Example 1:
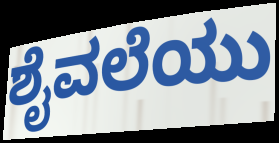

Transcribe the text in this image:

ಶೈವಲೆಯು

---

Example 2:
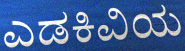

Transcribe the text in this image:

ಎಡಕಿವಿಯ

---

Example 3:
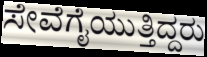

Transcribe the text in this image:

ಸೇವೆಗೈಯುತ್ತಿದ್ದರು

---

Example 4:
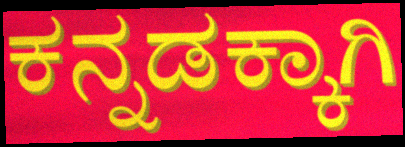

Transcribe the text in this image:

ಕನ್ನಡಕ್ಕಾಗಿ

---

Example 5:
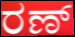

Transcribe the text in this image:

ರಣ್